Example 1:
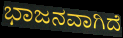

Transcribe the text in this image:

ಭಾಜನವಾಗಿದೆ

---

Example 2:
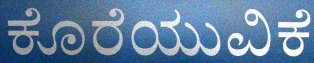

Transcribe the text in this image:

ಕೊರೆಯುವಿಕೆ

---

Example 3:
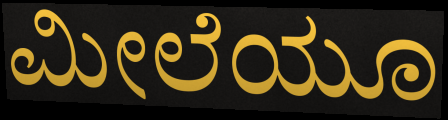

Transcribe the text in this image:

ಮೀಲೆಯೂ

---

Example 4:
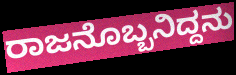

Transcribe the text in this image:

ರಾಜನೊಬ್ಬನಿದ್ದನು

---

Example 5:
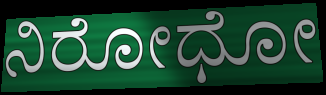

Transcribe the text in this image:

ನಿರೋಧೋ